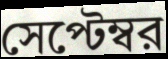
সেপ্টেম্বর